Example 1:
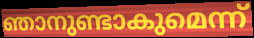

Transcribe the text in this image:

ഞാനുണ്ടാകുമെന്ന്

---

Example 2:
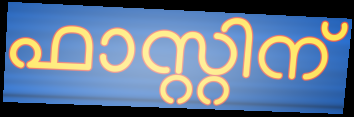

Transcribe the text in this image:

ഫാസ്റ്റിന്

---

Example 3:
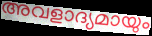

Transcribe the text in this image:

അവളാദ്യമായും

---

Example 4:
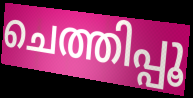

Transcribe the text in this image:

ചെത്തിപ്പൂ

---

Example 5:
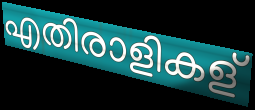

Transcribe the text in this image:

എതിരാളികള്